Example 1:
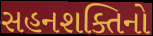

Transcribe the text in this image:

સહનશક્તિનો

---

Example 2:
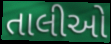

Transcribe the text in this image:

તાલીઓ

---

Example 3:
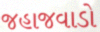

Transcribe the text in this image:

જહાજવાડો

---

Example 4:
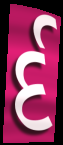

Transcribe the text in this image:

ર્દ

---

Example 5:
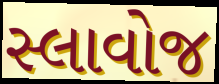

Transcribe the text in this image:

સ્લાવોજ